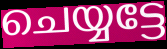
ചെയ്യട്ടേ